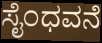
ಸೈಂಧವನೆ